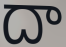
దా